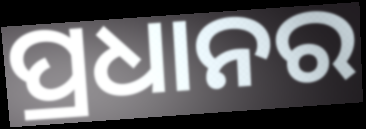
ପ୍ରଧାନର